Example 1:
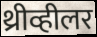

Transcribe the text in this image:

थ्रीव्हीलर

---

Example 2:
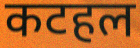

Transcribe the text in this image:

कटहल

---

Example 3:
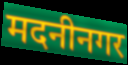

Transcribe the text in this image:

मदनीनगर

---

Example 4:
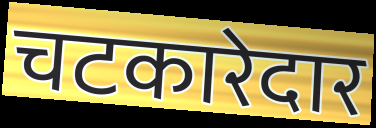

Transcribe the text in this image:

चटकारेदार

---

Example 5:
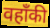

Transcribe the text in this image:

वहाँकी